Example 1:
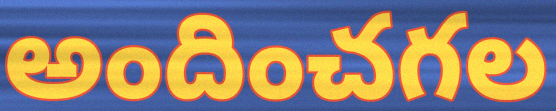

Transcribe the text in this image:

అందించగల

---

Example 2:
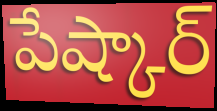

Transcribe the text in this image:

పేష్కార్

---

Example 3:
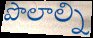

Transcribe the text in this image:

పొలాల్ని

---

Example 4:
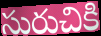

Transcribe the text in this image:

సురుచికి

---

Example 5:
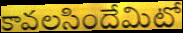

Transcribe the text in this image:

కావలసిందేమిటో